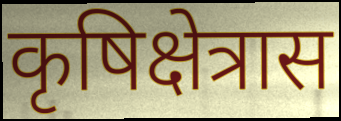
कृषिक्षेत्रास